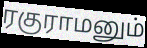
ரகுராமனும்